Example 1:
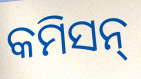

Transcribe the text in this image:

କମିସନ୍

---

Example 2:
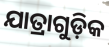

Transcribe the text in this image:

ଯାତ୍ରାଗୁଡ଼ିକ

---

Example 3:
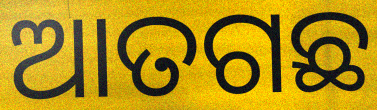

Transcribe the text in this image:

ଆତଗଛ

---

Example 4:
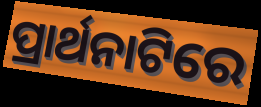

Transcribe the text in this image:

ପ୍ରାର୍ଥନାଟିରେ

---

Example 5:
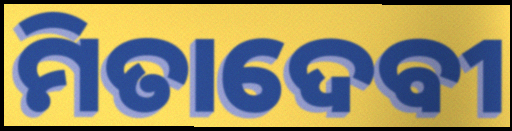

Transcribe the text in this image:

ମିତାଦେବୀ